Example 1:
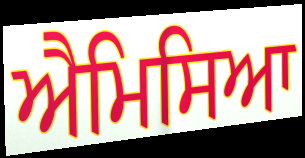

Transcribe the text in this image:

ਐਮਿਸਿਆ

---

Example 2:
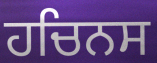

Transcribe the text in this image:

ਹਚਿਨਸ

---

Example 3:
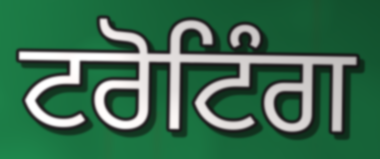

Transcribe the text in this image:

ਟਰੋਟਿੰਗ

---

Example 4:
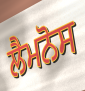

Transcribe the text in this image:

ਲੈਮਨੋਸ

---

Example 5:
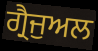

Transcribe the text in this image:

ਗ੍ਰੈਜੁਅਲ